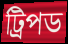
ট্রিপড